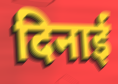
दिनाई